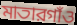
মাতারগাঁও